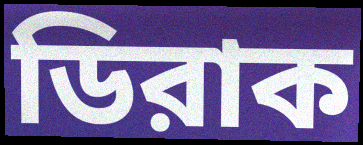
ডিরাক